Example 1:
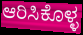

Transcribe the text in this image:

ಆರಿಸಿಕೊಳ್ಳ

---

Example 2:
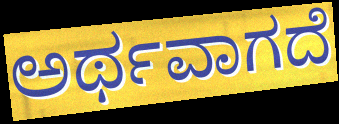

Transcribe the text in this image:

ಅರ್ಥವಾಗದೆ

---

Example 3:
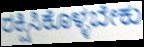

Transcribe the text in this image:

ರಕ್ಷಿಸಿಕೊಳ್ಳಬೇಕು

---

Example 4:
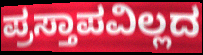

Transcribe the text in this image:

ಪ್ರಸ್ತಾಪವಿಲ್ಲದ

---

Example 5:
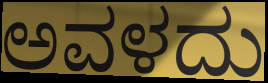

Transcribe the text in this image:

ಅವಳದು